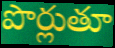
పొర్లుతూ